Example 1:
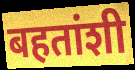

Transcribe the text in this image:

बहतांशी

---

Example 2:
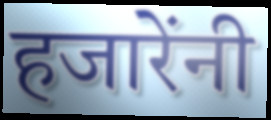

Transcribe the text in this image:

हजारेंनी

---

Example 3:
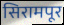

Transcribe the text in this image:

सिरामपूर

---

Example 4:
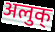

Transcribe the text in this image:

अलुक्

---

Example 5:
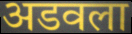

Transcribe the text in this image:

अडवला